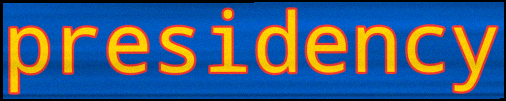
presidency